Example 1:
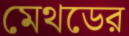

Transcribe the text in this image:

মেথডের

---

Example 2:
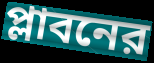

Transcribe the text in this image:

প্লাবনের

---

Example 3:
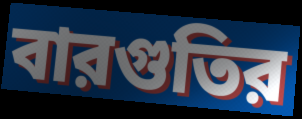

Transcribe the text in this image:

বারগুতির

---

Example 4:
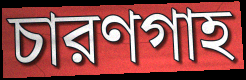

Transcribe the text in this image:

চারণগাহ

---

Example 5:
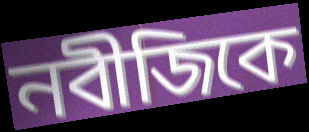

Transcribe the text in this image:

নবীজিকে